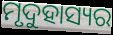
ମୃଦୁହାସ୍ୟର